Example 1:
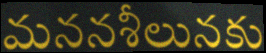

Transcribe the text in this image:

మననశీలునకు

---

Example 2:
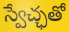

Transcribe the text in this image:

స్వేచ్ఛతో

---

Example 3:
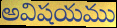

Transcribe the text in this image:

అవిషయము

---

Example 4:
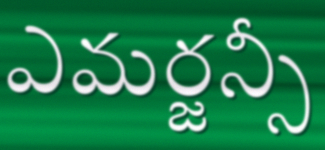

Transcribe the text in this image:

ఎమర్జన్సీ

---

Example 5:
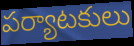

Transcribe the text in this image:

పర్యాటకులు